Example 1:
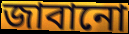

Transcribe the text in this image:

জাবানো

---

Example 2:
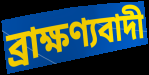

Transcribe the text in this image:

ব্রাক্ষণ্যবাদী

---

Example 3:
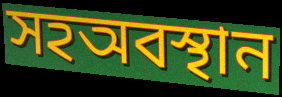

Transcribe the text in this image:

সহঅবস্থান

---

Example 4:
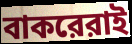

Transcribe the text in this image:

বাকরেরাই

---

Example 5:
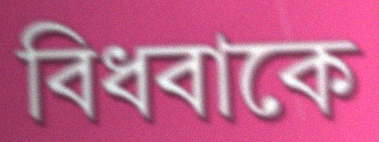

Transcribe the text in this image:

বিধবাকে